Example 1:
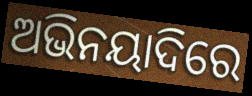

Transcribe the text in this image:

ଅଭିନୟାଦିରେ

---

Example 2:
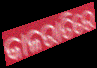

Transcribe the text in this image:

କାଳରାତିରେ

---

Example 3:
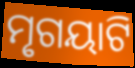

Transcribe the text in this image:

ମୃଗୟାଟି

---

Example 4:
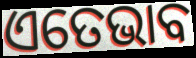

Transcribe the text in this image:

ଏତେଭାବ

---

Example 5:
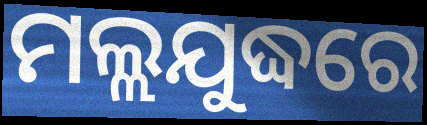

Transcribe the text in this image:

ମଲ୍ଲଯୁଦ୍ଧରେ